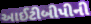
આઈટીબીપીની